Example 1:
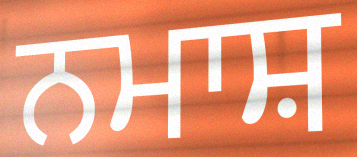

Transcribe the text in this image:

ਨਮਾਸ਼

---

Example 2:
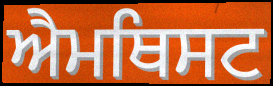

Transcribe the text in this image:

ਐਮਥਿਸਟ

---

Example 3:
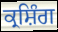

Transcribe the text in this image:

ਕ੍ਰਸ਼ਿੰਗ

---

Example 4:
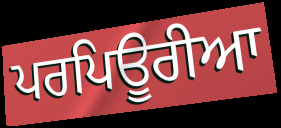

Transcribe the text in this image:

ਪਰਪਿਊਰੀਆ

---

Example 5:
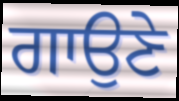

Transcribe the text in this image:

ਗਾਉਣੇ